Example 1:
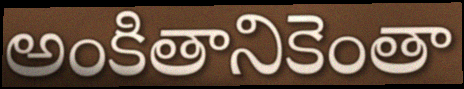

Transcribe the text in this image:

అంకితానికెంతా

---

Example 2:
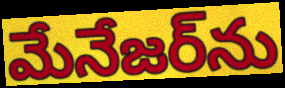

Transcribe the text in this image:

మేనేజర్‌ను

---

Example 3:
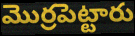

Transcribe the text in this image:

మొర్రపెట్టారు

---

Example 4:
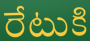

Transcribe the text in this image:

రేటుకి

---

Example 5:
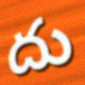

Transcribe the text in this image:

దు